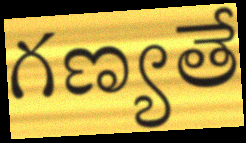
గణ్యతే